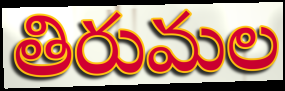
తిరుమల